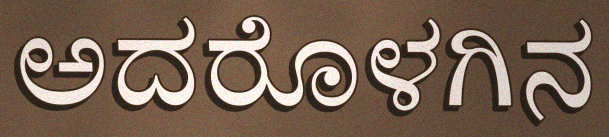
ಅದರೊಳಗಿನ